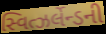
સ્વિત્ઝર્લેન્ડની